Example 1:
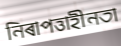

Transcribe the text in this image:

নিৰাপত্তাহীনতা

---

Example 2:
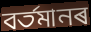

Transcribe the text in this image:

বৰ্তমানৰ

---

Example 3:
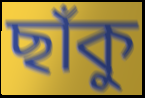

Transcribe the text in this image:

ছাঁকু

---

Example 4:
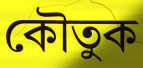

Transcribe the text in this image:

কৌতুক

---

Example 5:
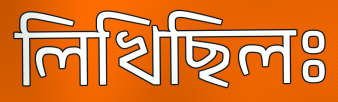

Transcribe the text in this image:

লিখিছিলঃ